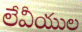
లేవీయుల